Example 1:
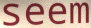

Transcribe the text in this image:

seem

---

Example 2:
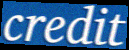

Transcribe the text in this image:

credit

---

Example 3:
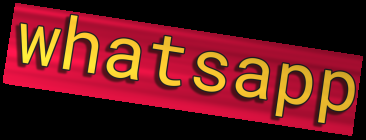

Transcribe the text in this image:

whatsapp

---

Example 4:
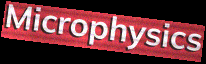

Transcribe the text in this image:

Microphysics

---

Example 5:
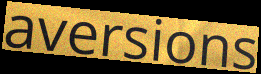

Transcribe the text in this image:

aversions